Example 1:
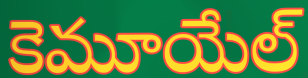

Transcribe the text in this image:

కెమూయేల్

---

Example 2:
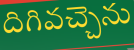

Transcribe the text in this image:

దిగివచ్చెను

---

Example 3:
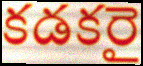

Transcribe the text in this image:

కడకరై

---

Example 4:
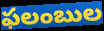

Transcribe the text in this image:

ఫలంబుల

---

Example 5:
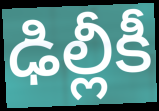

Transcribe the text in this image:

ఢిల్లీకీ